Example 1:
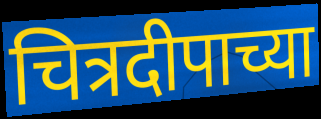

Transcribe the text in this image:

चित्रदीपाच्या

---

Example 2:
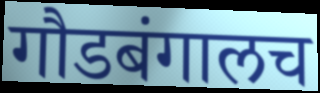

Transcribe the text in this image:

गौडबंगालच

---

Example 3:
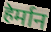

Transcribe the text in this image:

हेर्मान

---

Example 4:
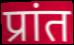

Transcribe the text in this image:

प्रांत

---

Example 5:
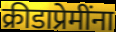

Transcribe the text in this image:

क्रीडाप्रेमींना